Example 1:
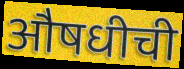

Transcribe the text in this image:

औषधीची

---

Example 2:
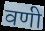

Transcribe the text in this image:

वणी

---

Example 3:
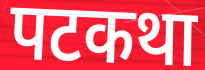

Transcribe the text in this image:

पटकथा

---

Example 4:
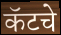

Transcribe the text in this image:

कॅटचे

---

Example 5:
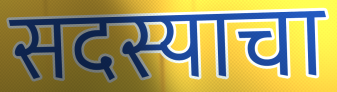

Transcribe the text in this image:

सदस्याचा